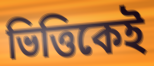
ভিত্তিকেই